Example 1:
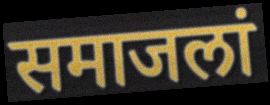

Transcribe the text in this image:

समाजलां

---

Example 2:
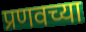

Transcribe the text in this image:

प्रणवच्या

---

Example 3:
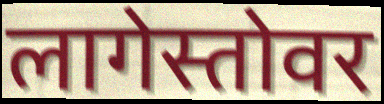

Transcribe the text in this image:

लागेस्तोवर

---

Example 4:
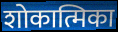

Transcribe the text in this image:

शोकात्मिका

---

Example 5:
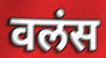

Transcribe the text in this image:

वलंस